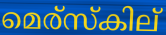
മെര്സ്കില്